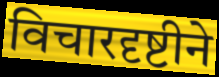
विचारदृष्टीने